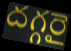
దగ్గరై